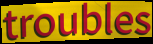
troubles